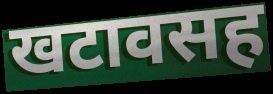
खटावसह